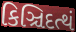
કિઞ્ચિદત્થં